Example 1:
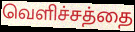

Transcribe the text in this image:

வெளிச்சத்தை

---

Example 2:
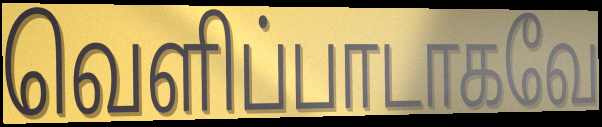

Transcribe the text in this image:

வெளிப்பாடாகவே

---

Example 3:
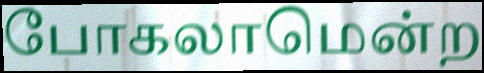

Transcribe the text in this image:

போகலாமென்ற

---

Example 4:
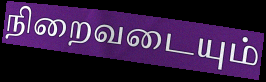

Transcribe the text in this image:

நிறைவடையும்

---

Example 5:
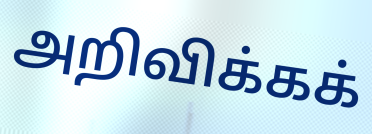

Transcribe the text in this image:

அறிவிக்கக்